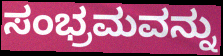
ಸಂಭ್ರಮವನ್ನು